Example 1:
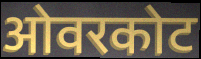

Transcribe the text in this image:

ओवरकोट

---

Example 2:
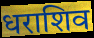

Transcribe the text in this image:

धराशिव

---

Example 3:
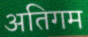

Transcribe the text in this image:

अतिगम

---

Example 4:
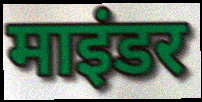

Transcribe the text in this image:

माइंडर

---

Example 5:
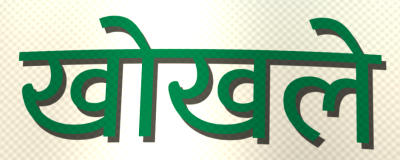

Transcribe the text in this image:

खोखले